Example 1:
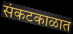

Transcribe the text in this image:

संकटकाळात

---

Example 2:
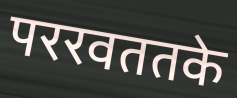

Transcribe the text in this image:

पररवततके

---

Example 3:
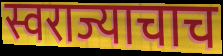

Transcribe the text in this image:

स्वराज्याचाच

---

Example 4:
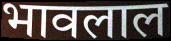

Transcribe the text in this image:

भावलाल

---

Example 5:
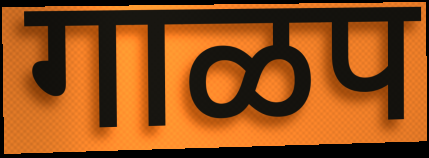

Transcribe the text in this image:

गाळप